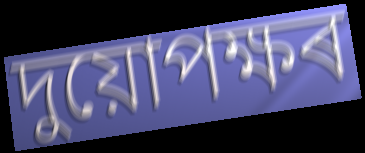
দুয়োপক্ষৰ